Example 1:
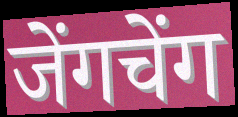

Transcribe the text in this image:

जेंगचेंग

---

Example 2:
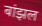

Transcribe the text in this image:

बांझल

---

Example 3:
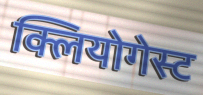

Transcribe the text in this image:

क्लियोगेस्ट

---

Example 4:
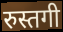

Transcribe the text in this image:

रुस्तगी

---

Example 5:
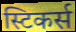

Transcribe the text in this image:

स्टिकर्स